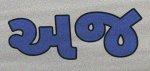
અજ